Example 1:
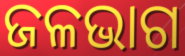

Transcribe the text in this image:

ଜଳଭାଗ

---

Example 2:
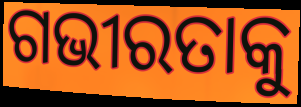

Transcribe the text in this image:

ଗଭୀରତାକୁ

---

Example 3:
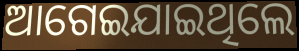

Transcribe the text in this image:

ଆଗେଇଯାଇଥିଲେ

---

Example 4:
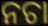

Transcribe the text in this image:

ନଚା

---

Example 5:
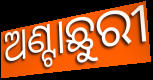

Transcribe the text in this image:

ଅଣ୍ଟାଛୁରୀ